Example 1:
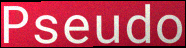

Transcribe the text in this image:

Pseudo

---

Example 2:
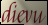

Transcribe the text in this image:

dievu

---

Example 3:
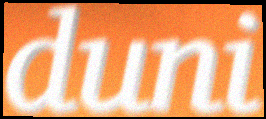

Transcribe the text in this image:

duni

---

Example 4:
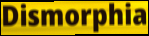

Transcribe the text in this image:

Dismorphia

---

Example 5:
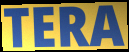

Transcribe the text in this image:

TERA